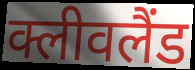
क्लीवलैंड